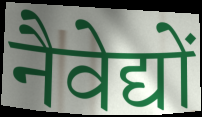
नैवेद्यों